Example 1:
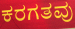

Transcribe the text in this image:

ಕರಗತವು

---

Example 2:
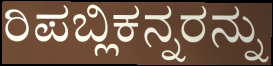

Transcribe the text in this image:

ರಿಪಬ್ಲಿಕನ್ನರನ್ನು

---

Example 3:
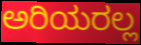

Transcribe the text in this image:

ಅರಿಯರಲ್ಲ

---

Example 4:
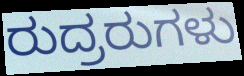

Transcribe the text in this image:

ರುದ್ರರುಗಳು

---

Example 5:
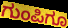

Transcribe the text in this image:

ಗುಂಪಿಗೂ